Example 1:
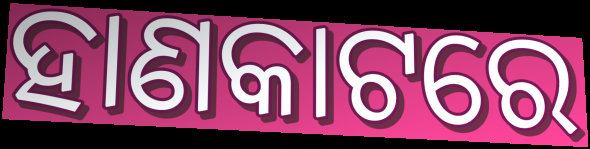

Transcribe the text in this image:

ହାଣକାଟରେ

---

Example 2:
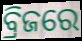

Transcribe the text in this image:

ବ୍ରିଜରେ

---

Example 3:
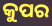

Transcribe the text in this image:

କୁପର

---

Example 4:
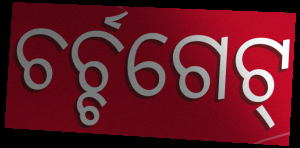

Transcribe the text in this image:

ଚର୍ଚ୍ଚଗେଟ୍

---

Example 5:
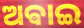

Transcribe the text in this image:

ଅଵାଇ